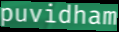
puvidham